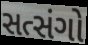
સત્સંગો